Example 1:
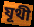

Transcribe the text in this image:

যূথী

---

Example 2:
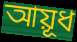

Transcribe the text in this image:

আয়ূধ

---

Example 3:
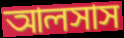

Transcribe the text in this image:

আলসাস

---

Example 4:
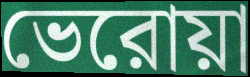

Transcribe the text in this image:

ভেরোয়া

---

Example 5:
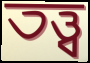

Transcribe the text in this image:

তত্ত্ব